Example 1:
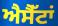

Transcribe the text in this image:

ਐਸੈੱਟਾਂ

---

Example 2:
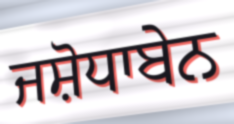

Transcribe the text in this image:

ਜਸ਼ੋਧਾਬੇਨ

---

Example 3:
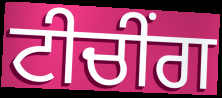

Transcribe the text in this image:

ਟੀਚੀਂਗ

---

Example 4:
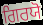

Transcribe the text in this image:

ਗਿਰਯੋ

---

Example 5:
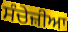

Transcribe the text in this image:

ਸੰਚੇਜ਼ੀਆ